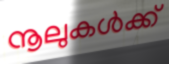
നൂലുകൾക്ക്